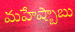
మహేష్బాబు